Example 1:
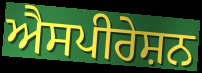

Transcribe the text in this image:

ਐਸਪੀਰੇਸ਼ਨ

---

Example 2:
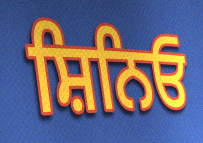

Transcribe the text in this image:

ਸ਼ਿਨਿਓ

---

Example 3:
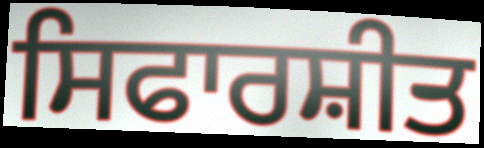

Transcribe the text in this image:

ਸਿਫਾਰਸ਼ੀਤ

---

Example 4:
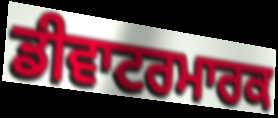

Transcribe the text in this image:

ਡੀਵਾਟਰਮਾਰਕ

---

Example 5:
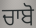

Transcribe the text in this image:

ਚਾਬੋ